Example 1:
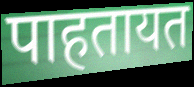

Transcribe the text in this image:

पाहतायत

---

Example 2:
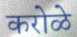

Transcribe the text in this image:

करोळे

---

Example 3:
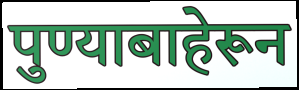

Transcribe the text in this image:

पुण्याबाहेरून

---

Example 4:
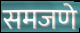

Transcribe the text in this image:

समजणे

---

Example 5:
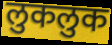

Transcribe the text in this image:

लुकलुक